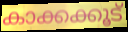
കാക്കക്കൂട്